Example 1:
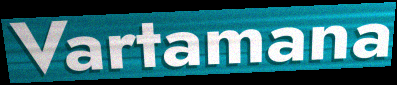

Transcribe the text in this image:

Vartamana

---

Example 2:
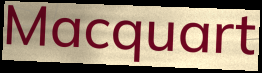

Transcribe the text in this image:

Macquart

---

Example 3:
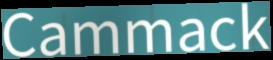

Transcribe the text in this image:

Cammack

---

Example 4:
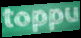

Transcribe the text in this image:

toppu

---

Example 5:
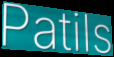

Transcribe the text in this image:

Patils